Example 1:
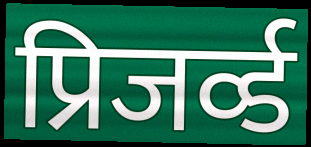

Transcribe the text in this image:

प्रिजर्व्ड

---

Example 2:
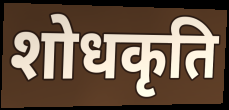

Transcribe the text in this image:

शोधकृति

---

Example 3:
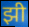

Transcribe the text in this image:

झी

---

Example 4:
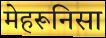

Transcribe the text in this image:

मेहरूनिसा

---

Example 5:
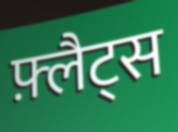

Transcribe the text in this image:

फ़्लैट्स